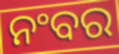
ନଂବର